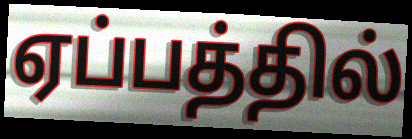
ஏப்பத்தில்